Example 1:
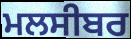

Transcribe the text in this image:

ਮਲਸੀਬਰ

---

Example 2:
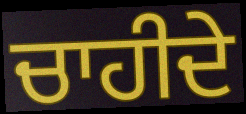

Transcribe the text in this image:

ਚਾਹੀਦੇ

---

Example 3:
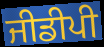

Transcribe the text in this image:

ਜੀਡੀਪੀ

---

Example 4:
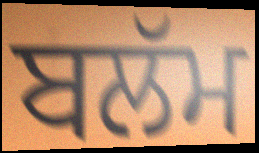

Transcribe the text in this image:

ਬਲੱਮ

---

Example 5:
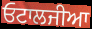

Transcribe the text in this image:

ਓਟਾਲਜੀਆ